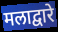
मलाद्वारे